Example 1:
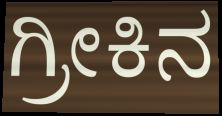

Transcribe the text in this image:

ಗ್ರೀಕಿನ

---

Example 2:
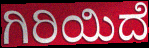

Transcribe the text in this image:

ಗಿರಿಯಿದೆ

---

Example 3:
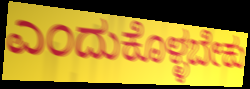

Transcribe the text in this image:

ಎಂದುಕೊಳ್ಳಬೇಕು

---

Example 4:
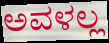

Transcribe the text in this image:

ಅವಳಲ್ಲ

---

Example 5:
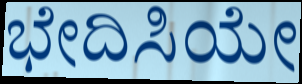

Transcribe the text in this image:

ಭೇದಿಸಿಯೇ